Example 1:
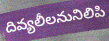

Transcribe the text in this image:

దివ్యలీలనునిలిపి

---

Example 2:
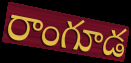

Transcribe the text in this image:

రాంగూడ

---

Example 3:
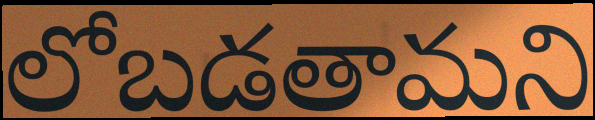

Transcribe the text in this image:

లోబడతామని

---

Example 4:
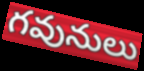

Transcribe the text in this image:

గవునులు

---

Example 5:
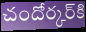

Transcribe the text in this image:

చందోర్కర్‌కి